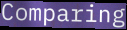
Comparing